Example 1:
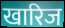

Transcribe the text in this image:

खारिज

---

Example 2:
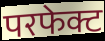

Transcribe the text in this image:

परफेक्ट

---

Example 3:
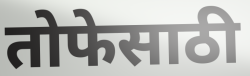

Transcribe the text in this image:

तोफेसाठी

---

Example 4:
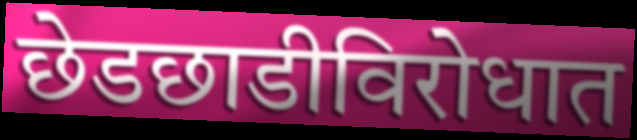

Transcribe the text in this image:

छेडछाडीविरोधात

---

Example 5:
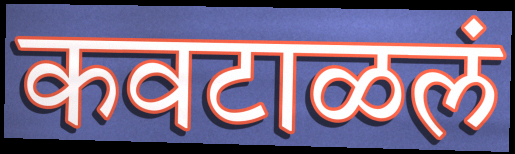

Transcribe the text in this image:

कवटाळलं